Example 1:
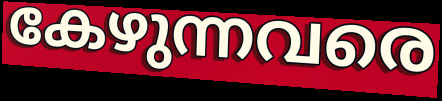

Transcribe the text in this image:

കേഴുന്നവരെ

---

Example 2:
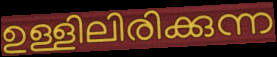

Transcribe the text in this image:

ഉള്ളിലിരിക്കുന്ന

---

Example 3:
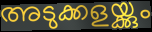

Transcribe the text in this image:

അടുക്കളയ്ക്കും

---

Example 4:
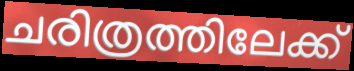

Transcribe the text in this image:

ചരിത്രത്തിലേക്ക്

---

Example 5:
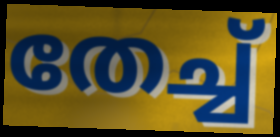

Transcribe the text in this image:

തേച്ച്